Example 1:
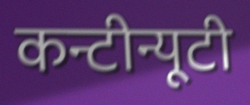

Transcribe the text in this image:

कन्टीन्यूटी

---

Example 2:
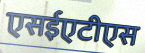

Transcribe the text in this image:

एसईएटीएस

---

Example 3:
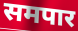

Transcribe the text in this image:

समपार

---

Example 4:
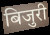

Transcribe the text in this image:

बिजुरी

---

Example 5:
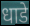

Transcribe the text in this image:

धाडे